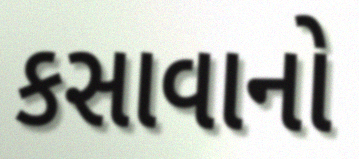
કસાવાનો